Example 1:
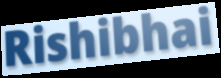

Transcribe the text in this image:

Rishibhai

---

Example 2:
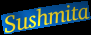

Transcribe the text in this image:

Sushmita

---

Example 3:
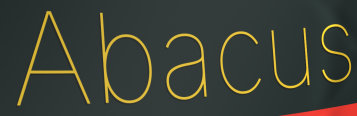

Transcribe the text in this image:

Abacus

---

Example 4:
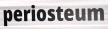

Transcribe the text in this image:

periosteum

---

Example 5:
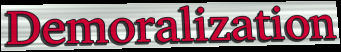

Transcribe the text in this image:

Demoralization